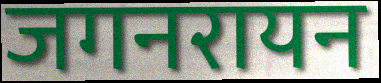
जगनरायन